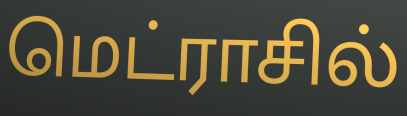
மெட்ராசில்